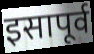
इसापूर्व